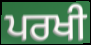
ਪਰਖੀ